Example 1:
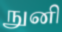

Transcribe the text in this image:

நுனி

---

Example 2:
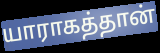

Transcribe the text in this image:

யாராகத்தான்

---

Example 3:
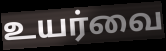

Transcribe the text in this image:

உயர்வை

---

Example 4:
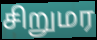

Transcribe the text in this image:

சிறுமர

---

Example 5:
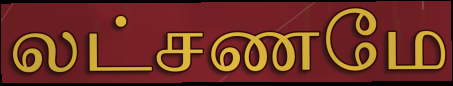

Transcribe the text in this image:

லட்சணமே